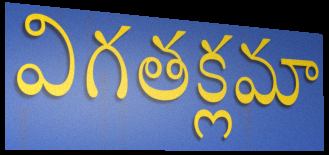
విగతక్లమా